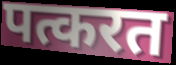
पत्करत